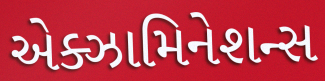
એક્ઝામિનેશન્સ